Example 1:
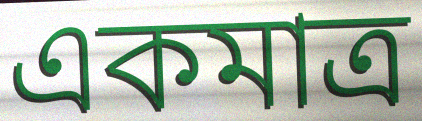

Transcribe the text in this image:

একমাত্ৰ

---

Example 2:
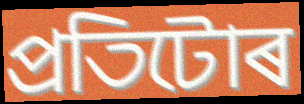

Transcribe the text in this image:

প্ৰতিটোৰ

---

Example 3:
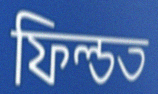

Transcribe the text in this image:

ফিল্ডত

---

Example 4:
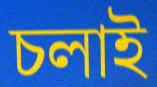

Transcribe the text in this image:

চলাই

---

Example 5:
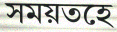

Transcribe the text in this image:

সময়তহে